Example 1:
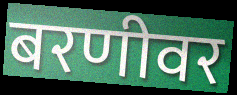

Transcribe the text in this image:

बरणीवर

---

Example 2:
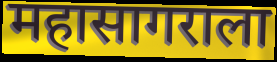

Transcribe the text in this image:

महासागराला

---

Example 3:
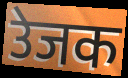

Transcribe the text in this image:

उेजक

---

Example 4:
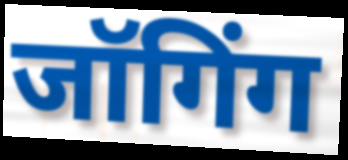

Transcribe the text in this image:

जॉगिंग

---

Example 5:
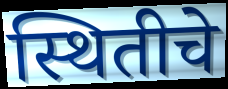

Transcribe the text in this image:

स्थितीचे